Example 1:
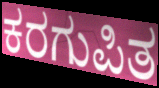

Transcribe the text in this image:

ಕರಗುಪಿತ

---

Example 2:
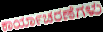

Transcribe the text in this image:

ಕಾರ್ಯಾಚರಣೆಗಳು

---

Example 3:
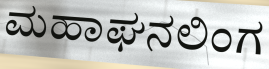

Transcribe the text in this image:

ಮಹಾಘನಲಿಂಗ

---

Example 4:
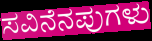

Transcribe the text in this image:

ಸವಿನೆನಪುಗಳು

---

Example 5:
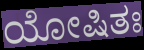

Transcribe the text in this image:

ಯೋಷಿತಃ